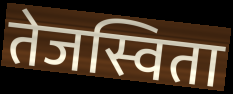
तेजस्विता